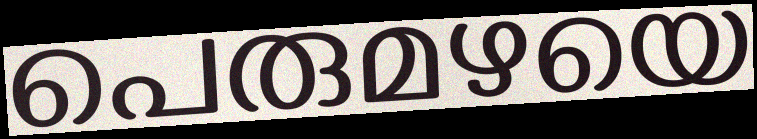
പെരുമഴയെ